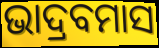
ଭାଦ୍ରବମାସ